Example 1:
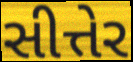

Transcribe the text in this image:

સીત્તેર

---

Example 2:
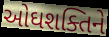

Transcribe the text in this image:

ઓઘશક્તિને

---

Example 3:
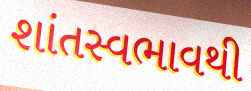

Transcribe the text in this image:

શાંતસ્વભાવથી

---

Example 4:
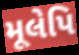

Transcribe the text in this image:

મૂલેપિ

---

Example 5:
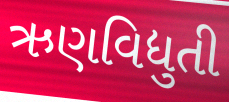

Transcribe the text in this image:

ઋણવિદ્યુતી